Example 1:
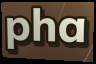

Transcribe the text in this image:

pha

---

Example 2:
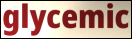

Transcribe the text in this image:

glycemic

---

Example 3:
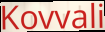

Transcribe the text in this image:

Kovvali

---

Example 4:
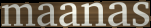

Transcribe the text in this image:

maanas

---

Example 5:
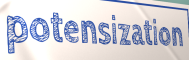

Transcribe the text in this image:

potensization